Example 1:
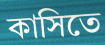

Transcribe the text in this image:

কাসিতে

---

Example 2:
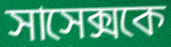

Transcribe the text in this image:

সাসেক্সকে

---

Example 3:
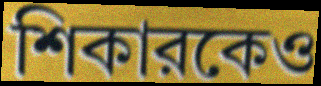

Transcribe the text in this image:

শিকারকেও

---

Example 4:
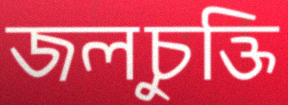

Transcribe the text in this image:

জলচুক্তি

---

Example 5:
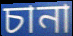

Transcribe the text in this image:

চানা